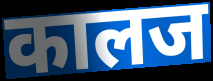
कालज